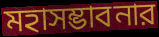
মহাসম্ভাবনার